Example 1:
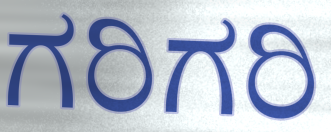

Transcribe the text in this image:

ಗರಿಗರಿ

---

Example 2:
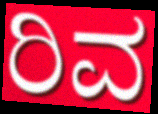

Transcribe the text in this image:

ರಿವ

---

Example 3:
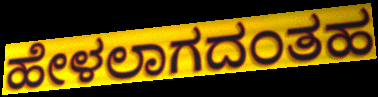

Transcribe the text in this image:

ಹೇಳಲಾಗದಂತಹ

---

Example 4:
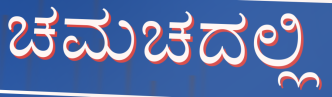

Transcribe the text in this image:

ಚಮಚದಲ್ಲಿ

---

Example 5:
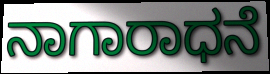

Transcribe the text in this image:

ನಾಗಾರಾಧನೆ